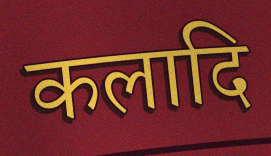
कलादि